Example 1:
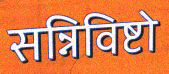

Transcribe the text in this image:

सन्निविष्टो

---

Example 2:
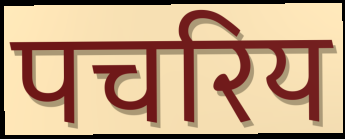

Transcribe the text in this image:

पचरिय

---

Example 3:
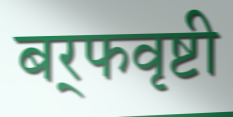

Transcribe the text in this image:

बर्फवृष्टी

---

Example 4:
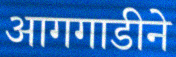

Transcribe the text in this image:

आगगाडीने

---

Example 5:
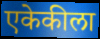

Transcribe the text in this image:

एकेकीला